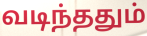
வடிந்ததும்